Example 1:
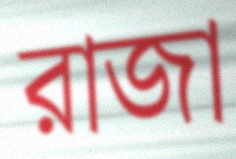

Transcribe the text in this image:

রাজা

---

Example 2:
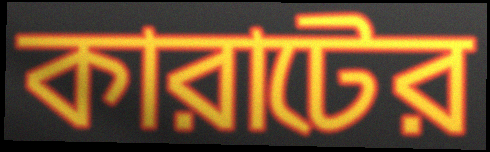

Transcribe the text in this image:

কারাটের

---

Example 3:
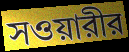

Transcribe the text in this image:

সওয়ারীর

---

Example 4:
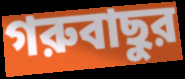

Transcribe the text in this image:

গরুবাছুর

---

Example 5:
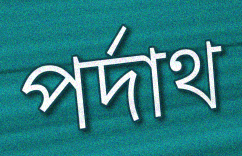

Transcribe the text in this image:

পর্দাথ